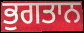
ਭੁਗਤਾਨ